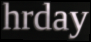
hrday